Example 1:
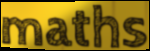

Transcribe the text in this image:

maths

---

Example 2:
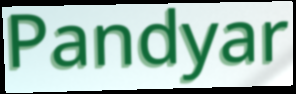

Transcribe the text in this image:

Pandyar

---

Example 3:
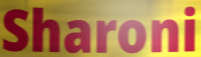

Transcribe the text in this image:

Sharoni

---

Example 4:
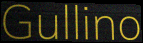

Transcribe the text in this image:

Gullino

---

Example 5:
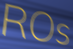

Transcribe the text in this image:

ROs